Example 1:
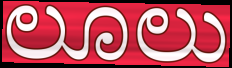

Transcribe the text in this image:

ಲೂಲು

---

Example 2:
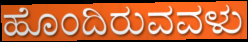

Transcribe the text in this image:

ಹೊಂದಿರುವವಳು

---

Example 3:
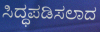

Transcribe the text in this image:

ಸಿದ್ಧಪಡಿಸಲಾದ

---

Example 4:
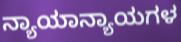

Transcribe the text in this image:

ನ್ಯಾಯಾನ್ಯಾಯಗಳ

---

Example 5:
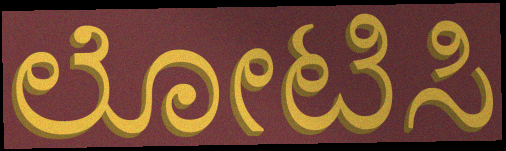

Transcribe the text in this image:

ಲೋಟಿಸಿ